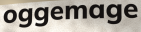
oggemage